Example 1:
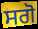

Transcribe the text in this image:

ਸਗੋ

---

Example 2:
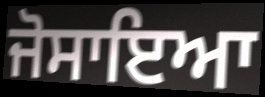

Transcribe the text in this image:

ਜੋਸਾਇਆ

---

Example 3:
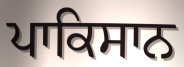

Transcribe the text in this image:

ਪਾਕਿਸਾਨ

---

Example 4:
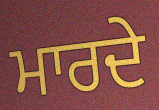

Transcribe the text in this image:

ਮਾਰਦੇ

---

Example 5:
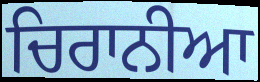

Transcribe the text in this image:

ਚਿਰਾਨੀਆ